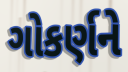
ગોકર્ણને